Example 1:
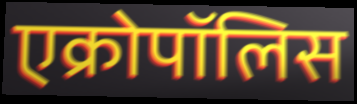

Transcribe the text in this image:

एक्रोपॉलिस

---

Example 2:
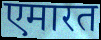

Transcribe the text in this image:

एमारत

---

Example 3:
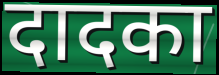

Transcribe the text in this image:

दादका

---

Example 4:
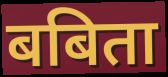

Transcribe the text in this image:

बबिता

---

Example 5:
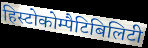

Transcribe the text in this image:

हिस्टोकोम्पैटिबिलिटी